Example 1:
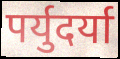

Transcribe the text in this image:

पर्युदर्या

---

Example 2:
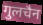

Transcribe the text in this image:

गुलचैन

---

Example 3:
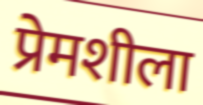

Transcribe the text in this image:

प्रेमशीला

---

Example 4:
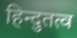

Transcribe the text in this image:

हिन्दुतत्व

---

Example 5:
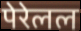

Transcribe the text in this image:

पेरेलल